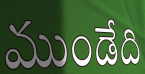
ముండేది